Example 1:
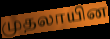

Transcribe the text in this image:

முதலாயின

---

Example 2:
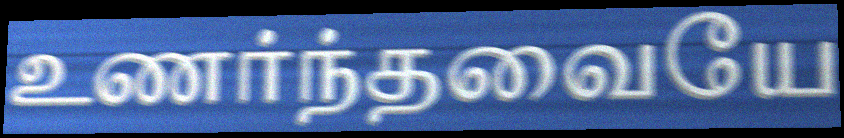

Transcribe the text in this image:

உணர்ந்தவையே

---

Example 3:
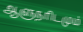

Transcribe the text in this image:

ஆளுநரிடமும்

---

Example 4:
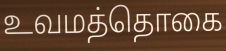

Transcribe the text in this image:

உவமத்தொகை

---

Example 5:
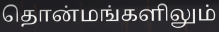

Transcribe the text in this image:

தொன்மங்களிலும்